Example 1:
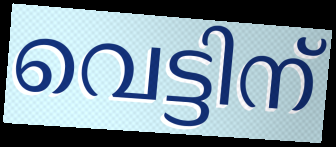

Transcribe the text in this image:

വെട്ടിന്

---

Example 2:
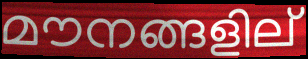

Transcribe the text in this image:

മൗനങ്ങളില്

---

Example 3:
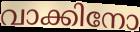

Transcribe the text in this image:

വാക്കിനോ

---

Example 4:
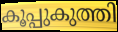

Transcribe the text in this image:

കൂപ്പുകുത്തി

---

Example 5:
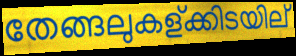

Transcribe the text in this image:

തേങ്ങലുകള്ക്കിടയില്